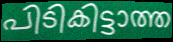
പിടികിട്ടാത്ത